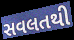
સવલતથી